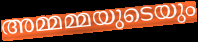
അമ്മമ്മയുടെയും